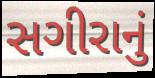
સગીરાનું